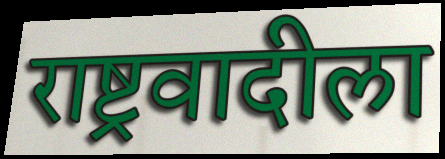
राष्ट्रवादीला